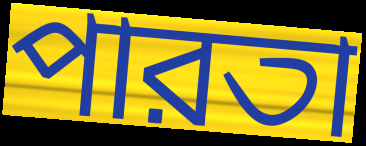
পারতা